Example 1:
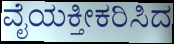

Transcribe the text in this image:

ವೈಯಕ್ತೀಕರಿಸಿದ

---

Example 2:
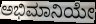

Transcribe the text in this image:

ಅಭಿಮಾನಿಯೇ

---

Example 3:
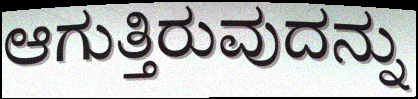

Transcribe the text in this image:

ಆಗುತ್ತಿರುವುದನ್ನು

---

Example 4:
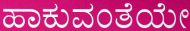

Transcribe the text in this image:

ಹಾಕುವಂತೆಯೇ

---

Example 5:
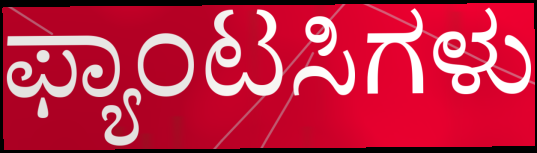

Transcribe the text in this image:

ಫ್ಯಾಂಟಸಿಗಳು